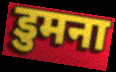
डुमना